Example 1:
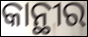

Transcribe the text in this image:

କାନ୍ଥୀର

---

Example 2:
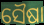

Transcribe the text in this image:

ସୈଷା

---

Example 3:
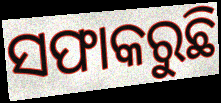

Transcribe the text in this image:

ସଫାକରୁଛି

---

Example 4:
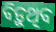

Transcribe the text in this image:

ବିଡ଼ୁଥିବ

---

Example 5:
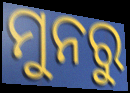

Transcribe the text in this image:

ମୁନରୁ